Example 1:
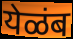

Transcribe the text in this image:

येळंब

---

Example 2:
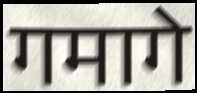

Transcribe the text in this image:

गमागे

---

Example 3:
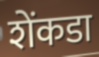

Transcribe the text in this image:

शेंकडा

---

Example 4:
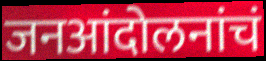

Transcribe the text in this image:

जनआंदोलनांचं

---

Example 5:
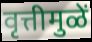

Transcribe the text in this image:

वृत्तीमुळें